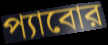
প্যাবোর